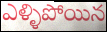
ఎళ్ళిపోయిన